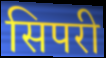
सिपरी